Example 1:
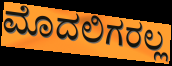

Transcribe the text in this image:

ಮೊದಲಿಗರಲ್ಲ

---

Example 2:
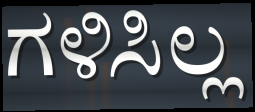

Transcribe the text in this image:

ಗಳಿಸಿಲ್ಲ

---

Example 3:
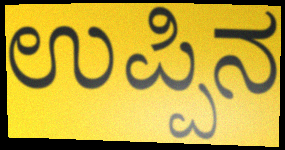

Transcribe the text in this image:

ಉಪ್ಪಿನ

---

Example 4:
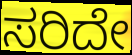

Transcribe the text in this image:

ಸರಿದೇ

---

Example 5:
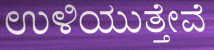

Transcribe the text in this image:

ಉಳಿಯುತ್ತೇವೆ